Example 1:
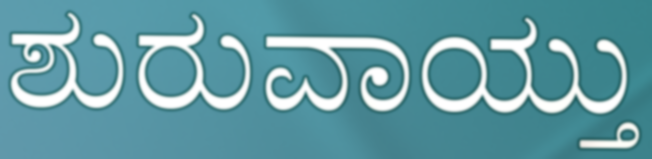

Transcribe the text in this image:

ಶುರುವಾಯ್ತು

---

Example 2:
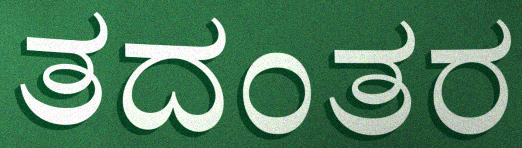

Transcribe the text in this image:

ತದಂತರ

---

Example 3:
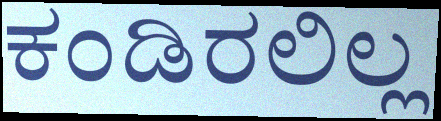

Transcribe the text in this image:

ಕಂಡಿರಲಿಲ್ಲ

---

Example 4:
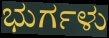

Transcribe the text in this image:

ಭುರ್ಗಳು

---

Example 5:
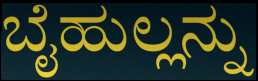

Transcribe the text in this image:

ಬೈಹುಲ್ಲನ್ನು